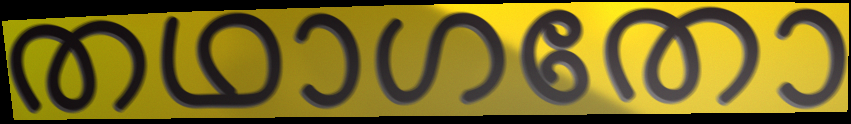
തഥാഗതോ